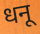
धनू